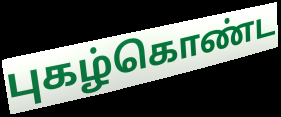
புகழ்கொண்ட